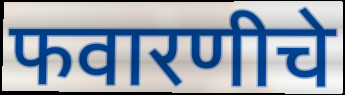
फवारणीचे